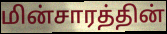
மின்சாரத்தின்